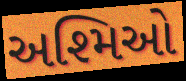
અશ્મિઓ